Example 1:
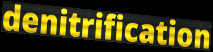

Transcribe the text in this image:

denitrification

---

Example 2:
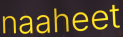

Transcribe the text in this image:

naaheet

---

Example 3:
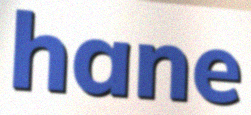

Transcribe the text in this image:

hane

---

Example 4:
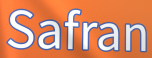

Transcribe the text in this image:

Safran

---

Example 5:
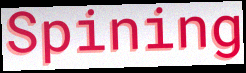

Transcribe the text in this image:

Spining